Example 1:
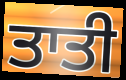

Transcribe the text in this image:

ਤਾਤੀ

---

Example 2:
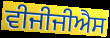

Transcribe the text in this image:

ਵੀਜੀਜੀਐਸ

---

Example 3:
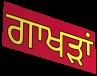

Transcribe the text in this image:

ਗਾਖੜਾਂ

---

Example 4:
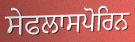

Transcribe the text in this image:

ਸੇਫਲਾਸਪੋਰਿਨ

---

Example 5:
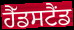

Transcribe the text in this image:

ਹੈੱਡਸਟੈਂਡ